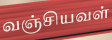
வஞ்சியவள்